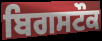
ਬਿਗਸਟੌਕ